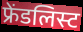
फ्रेंडलिस्ट